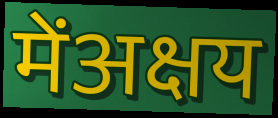
मेंअक्षय